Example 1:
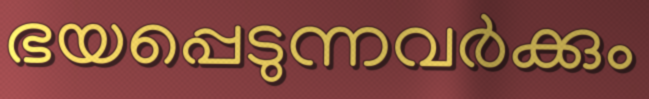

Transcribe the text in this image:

ഭയപ്പെടുന്നവർക്കും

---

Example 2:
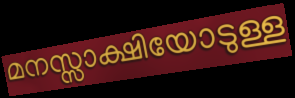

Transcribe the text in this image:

മനസ്സാക്ഷിയോടുള്ള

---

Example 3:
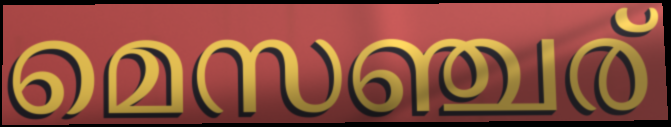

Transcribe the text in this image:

മെസഞ്ചര്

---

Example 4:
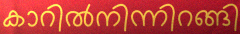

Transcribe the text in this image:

കാറിൽനിന്നിറങ്ങി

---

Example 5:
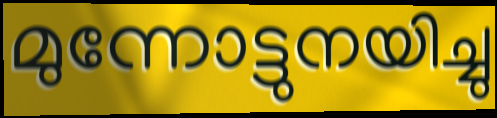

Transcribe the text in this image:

മുന്നോട്ടുനയിച്ചു